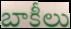
బాకీలు